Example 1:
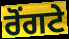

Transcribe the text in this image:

ਰੋੰਗਟੇ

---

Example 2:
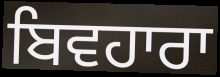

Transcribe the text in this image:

ਬਿਵਹਾਰਾ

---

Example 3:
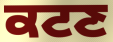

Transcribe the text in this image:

ਕਟਣ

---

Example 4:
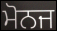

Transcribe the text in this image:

ਮੋਨਜ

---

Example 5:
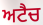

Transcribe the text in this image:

ਅਟੈਚ